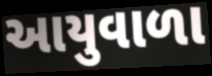
આયુવાળા